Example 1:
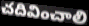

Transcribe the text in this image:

చదివించాలి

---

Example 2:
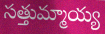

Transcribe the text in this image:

సత్తుమ్మాయ్య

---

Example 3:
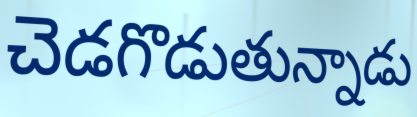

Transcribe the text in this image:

చెడగొడుతున్నాడు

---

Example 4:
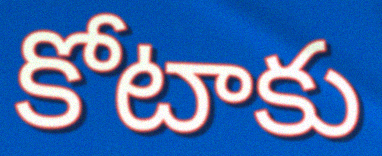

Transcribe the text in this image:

కోటాకు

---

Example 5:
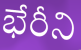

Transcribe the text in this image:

భేరీని